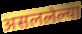
असललेल्या